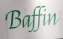
Baffin